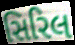
સિરિલ